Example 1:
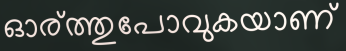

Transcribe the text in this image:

ഓര്ത്തുപോവുകയാണ്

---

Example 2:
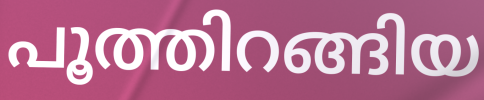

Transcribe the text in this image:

പൂത്തിറങ്ങിയ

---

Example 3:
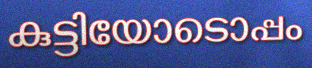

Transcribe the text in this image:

കുട്ടിയോടൊപ്പം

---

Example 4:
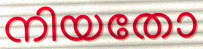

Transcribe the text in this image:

നിയതോ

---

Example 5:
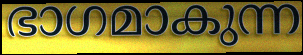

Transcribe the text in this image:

ഭാഗമാകുന്ന